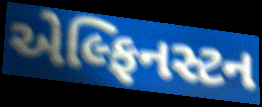
એલ્ફિનસ્ટન